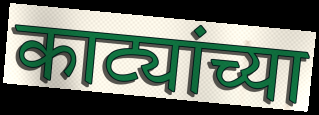
काट्यांच्या